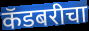
कॅडबरीचा